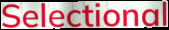
Selectional